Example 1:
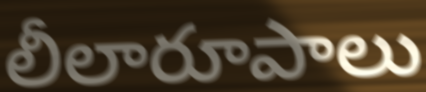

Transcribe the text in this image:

లీలారూపాలు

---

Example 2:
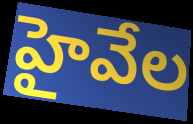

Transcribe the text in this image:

హైవేల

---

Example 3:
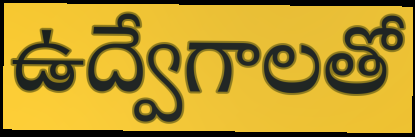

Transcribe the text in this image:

ఉద్వేగాలతో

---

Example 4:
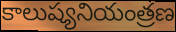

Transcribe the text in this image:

కాలుష్యనియంత్రణ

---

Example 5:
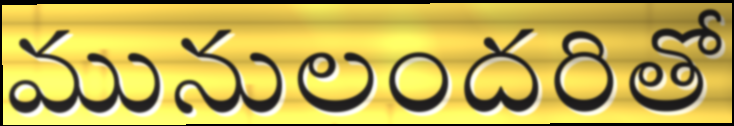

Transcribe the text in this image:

మునులందరితో